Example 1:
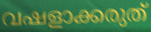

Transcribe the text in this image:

വഷളാക്കരുത്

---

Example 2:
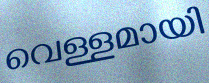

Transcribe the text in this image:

വെള്ളമായി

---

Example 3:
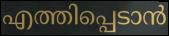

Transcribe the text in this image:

എത്തിപ്പെടാൻ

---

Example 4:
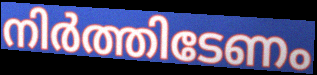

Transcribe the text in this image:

നിർത്തിടേണം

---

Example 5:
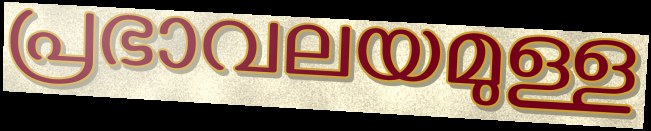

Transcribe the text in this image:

പ്രഭാവലയമുള്ള